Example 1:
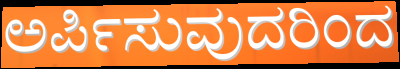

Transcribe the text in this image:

ಅರ್ಪಿಸುವುದರಿಂದ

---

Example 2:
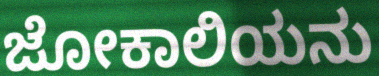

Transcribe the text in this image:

ಜೋಕಾಲಿಯನು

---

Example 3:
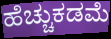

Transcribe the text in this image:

ಹೆಚ್ಚುಕಡಮೆ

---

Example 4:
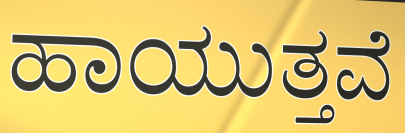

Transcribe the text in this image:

ಹಾಯುತ್ತವೆ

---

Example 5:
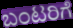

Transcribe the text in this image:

ಬಂಟರಿಗೆ